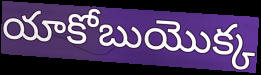
యాకోబుయొక్క